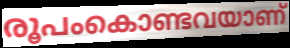
രൂപംകൊണ്ടവയാണ്